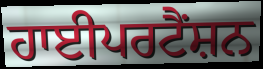
ਹਾਈਪਰਟੈਂਸ਼ਨ